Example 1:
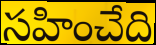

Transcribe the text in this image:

సహించేది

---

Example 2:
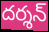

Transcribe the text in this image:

దర్శన్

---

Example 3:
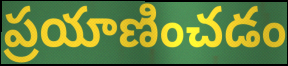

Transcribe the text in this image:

ప్రయాణించడం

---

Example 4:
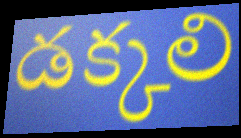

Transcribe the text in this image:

డక్కలి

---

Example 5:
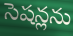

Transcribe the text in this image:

సెషన్లను